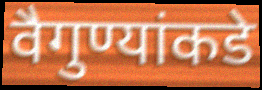
वैगुण्यांकडे